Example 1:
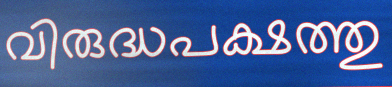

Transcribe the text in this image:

വിരുദ്ധപക്ഷത്തു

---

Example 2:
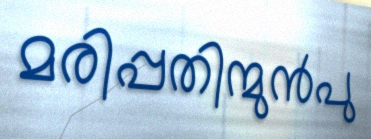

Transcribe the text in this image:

മരിപ്പതിന്മുൻപു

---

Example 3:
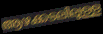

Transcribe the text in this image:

ആഴക്കടലിലുള്ള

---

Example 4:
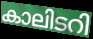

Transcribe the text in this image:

കാലിടറി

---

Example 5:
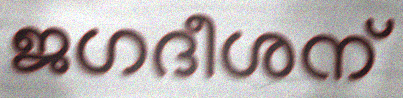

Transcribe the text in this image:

ജഗദീശന്